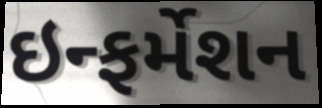
ઇન્ફર્મેશન